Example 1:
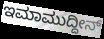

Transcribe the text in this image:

ಇಮಾಮುದ್ದೀನ್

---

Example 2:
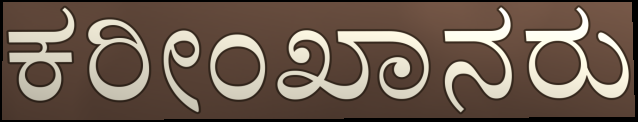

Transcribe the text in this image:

ಕರೀಂಖಾನರು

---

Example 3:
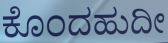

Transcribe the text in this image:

ಕೊಂದಹುದೀ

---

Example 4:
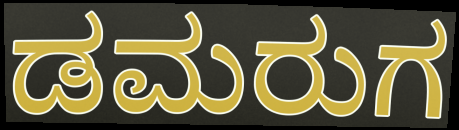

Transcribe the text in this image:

ಡಮರುಗ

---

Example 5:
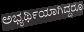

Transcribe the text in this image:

ಅಭ್ಯರ್ಥಿಯಾಗಿದ್ದರೂ